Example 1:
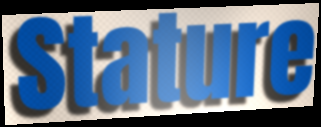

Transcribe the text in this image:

Stature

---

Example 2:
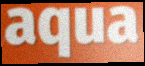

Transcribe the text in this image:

aqua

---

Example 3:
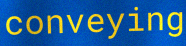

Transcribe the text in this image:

conveying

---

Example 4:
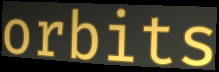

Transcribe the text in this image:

orbits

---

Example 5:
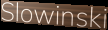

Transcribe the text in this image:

Slowinski